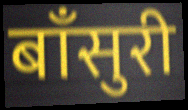
बॉंसुरी